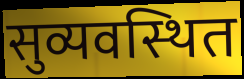
सुव्यवस्थित